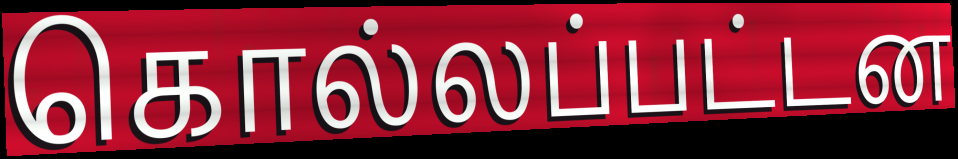
கொல்லப்பட்டன